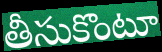
తీసుకొంటూ